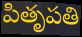
పితృపతి